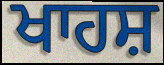
ਖਾਹਸ਼